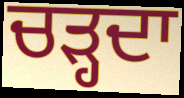
ਚੜ੍ਹਦਾ